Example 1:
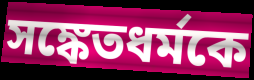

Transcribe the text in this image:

সঙ্কেতধর্মকে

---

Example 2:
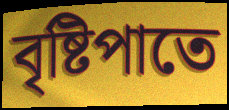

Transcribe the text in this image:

বৃষ্টিপাতে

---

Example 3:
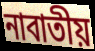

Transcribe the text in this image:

নাবাতীয়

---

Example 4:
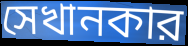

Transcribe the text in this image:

সেখানকার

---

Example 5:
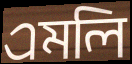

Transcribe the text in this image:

এমলি